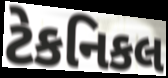
ટેકનિકલ